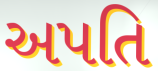
અપતિ